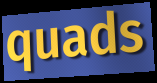
quads